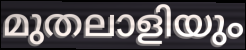
മുതലാളിയും